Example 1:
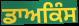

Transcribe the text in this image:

ਡਾਅਕਿੰਸ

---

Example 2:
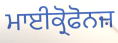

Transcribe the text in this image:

ਮਾਈਕ੍ਰੋਫੋਨਜ਼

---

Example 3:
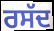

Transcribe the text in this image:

ਰਸੱਦ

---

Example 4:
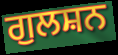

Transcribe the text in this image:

ਗੁਲਸ਼ਨ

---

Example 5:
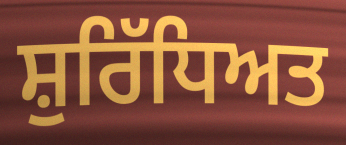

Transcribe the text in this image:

ਸ਼ੁਰਿੱਧਿਅਤ